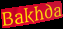
Bakhda